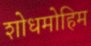
शोधमोहिम